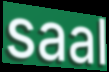
saal